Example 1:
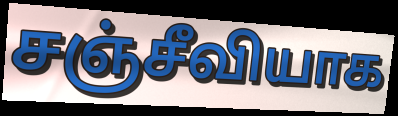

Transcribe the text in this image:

சஞ்சீவியாக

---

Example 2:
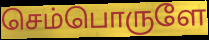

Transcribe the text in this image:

செம்பொருளே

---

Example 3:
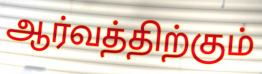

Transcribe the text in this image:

ஆர்வத்திற்கும்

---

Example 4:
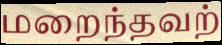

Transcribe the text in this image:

மறைந்தவற்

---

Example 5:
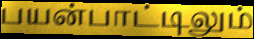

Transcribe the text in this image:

பயன்பாட்டிலும்